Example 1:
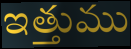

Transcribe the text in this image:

ఇత్తుము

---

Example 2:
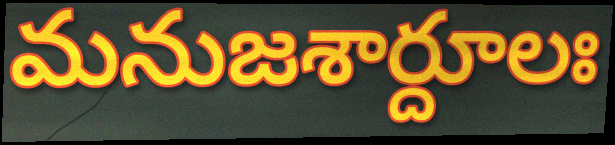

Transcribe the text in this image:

మనుజశార్దూలః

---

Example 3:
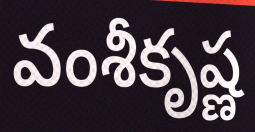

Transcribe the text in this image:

వంశీకృష్ణ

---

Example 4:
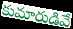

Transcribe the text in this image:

కుమారుడివే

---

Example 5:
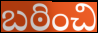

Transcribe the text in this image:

బఠించి